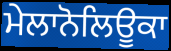
ਮੇਲਾਨੋਲਿਊਕਾ